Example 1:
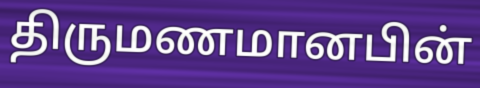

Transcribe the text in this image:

திருமணமானபின்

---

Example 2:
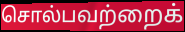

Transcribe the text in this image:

சொல்பவற்றைக்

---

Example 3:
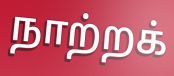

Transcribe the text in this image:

நாற்றக்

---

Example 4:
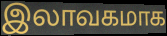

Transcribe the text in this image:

இலாவகமாக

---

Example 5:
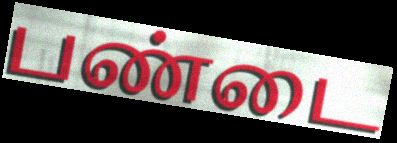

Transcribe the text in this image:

பண்டை